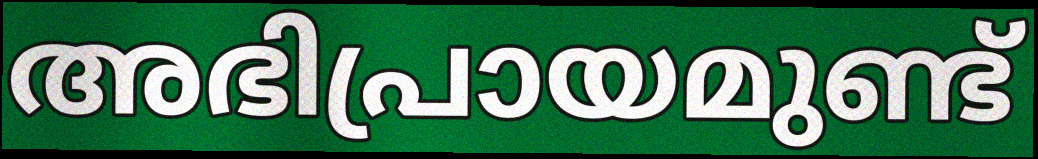
അഭിപ്രായമുണ്ട്